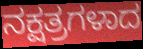
ನಕ್ಷತ್ರಗಳಾದ